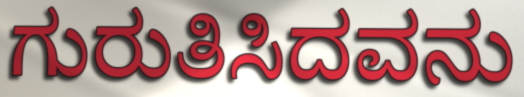
ಗುರುತಿಸಿದವನು